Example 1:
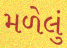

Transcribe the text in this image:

મળેલું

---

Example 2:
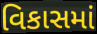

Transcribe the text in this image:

વિકાસમાં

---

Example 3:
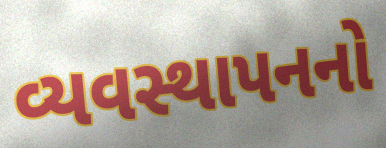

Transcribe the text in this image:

વ્યવસ્થાપનનો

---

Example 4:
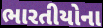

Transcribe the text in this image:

ભારતીયોના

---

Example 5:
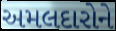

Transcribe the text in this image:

અમલદારોને